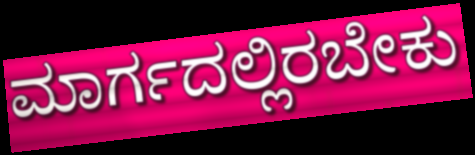
ಮಾರ್ಗದಲ್ಲಿರಬೇಕು